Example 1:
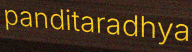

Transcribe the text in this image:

panditaradhya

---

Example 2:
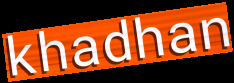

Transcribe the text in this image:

khadhan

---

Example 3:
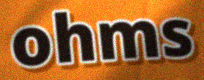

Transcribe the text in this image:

ohms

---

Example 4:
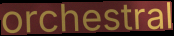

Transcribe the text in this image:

orchestral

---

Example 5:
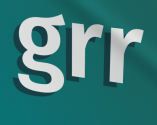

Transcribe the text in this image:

grr